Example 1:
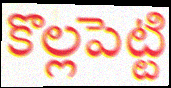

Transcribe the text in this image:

కొల్లపెట్టి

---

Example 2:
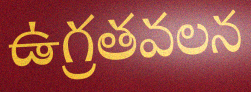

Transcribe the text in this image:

ఉగ్రతవలన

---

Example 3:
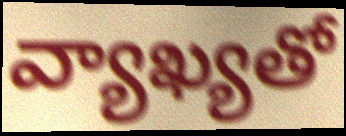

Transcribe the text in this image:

వ్యాఖ్యతో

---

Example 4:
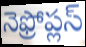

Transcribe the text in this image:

నెఫ్రోప్లస్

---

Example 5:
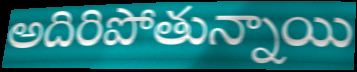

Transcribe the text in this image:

అదిరిపోతున్నాయి